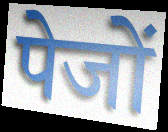
पेजों